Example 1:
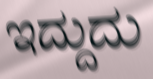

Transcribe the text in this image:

ಇದ್ದುದು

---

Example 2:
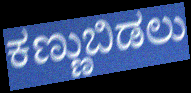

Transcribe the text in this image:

ಕಣ್ಣುಬಿಡಲು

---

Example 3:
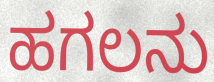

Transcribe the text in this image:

ಹಗಲನು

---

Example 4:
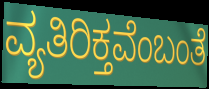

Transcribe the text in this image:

ವ್ಯತಿರಿಕ್ತವೆಂಬಂತೆ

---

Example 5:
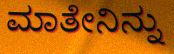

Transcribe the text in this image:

ಮಾತೇನಿನ್ನು